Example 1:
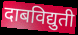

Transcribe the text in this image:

दाबविद्युती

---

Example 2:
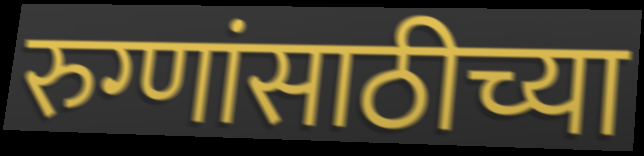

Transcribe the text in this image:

रुग्णांसाठीच्या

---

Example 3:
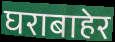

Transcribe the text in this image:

घराबाहेर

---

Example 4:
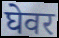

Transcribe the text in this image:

घेवर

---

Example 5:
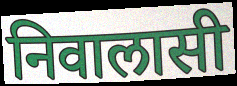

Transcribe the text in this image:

निवालासी